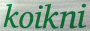
koikni